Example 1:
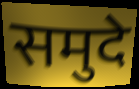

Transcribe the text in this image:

समुदे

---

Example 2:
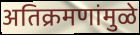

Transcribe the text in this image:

अतिक्रमणांमुळे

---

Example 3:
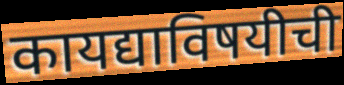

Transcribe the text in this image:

कायद्याविषयीची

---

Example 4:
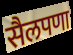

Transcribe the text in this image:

सैलपणा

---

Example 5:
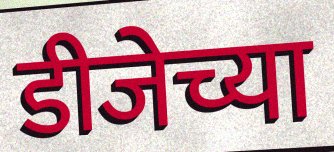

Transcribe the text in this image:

डीजेच्या